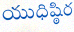
యుధిష్ఠిర